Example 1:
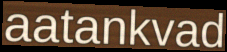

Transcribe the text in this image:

aatankvad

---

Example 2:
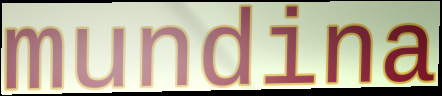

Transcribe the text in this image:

mundina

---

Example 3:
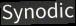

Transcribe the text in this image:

Synodic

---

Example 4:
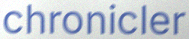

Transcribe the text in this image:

chronicler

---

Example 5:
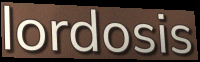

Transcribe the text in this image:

lordosis